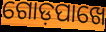
ଗୋଡ଼ପାଖେ